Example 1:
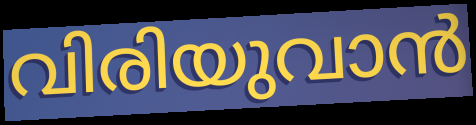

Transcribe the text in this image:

വിരിയുവാൻ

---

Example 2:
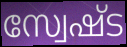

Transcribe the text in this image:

സ്വേഷ്ട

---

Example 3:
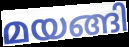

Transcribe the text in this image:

മയങ്ങി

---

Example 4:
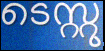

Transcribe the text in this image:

ടെസ്റ്റു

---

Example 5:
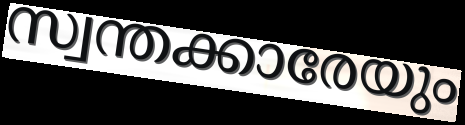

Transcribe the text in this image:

സ്വന്തക്കാരേയും